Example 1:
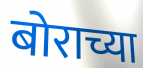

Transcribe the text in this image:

बोराच्या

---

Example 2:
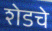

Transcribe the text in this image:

शेडचे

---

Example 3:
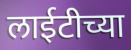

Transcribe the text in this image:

लाईटीच्या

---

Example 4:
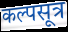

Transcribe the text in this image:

कल्पसूत्र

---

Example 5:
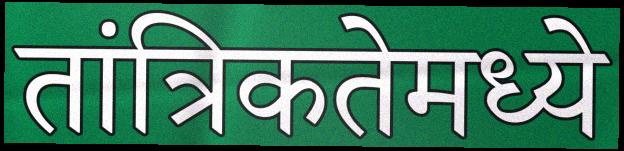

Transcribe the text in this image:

तांत्रिकतेमध्ये